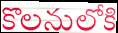
కొలనులోకి